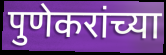
पुणेकरांच्या